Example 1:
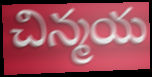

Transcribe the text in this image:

చిన్మయ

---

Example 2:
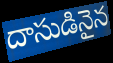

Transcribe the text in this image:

దాసుడినైన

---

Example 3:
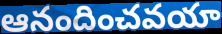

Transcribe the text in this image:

ఆనందించవయా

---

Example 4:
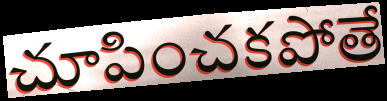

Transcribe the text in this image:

చూపించకపోతే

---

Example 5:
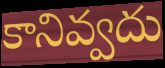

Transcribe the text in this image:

కానివ్వదు